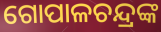
ଗୋପାଳଚନ୍ଦ୍ରଙ୍କ